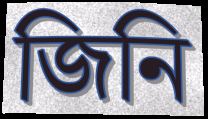
জিনি